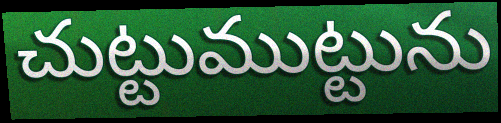
చుట్టుముట్టును